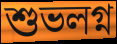
শুভলগ্ন